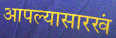
आपल्यासारखं